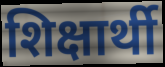
शिक्षार्थी